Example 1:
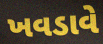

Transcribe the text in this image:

ખવડાવે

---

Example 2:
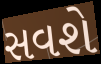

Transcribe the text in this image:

સવશે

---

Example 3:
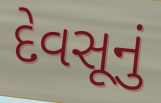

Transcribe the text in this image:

દેવસૂનું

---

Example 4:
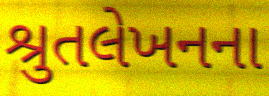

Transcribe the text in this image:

શ્રુતલેખનના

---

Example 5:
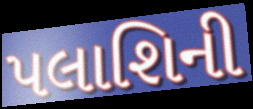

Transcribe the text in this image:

પલાશિની